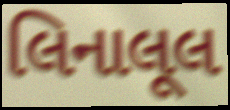
લિનાલૂલ